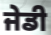
ਜੇਡੀ